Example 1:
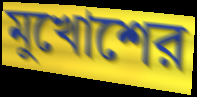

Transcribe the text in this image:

মুখোশের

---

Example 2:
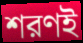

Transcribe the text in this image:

শরণই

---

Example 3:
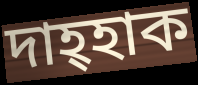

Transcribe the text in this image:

দাহ্হাক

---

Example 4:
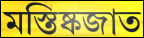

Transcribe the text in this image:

মস্তিষ্কজাত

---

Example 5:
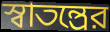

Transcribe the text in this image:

স্বাতন্ত্রের